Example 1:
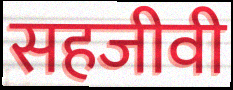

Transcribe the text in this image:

सहजीवी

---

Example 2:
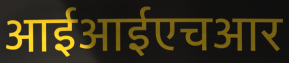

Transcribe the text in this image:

आईआईएचआर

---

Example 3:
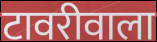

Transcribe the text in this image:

टावरीवाला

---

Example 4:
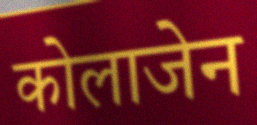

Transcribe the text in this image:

कोलाजेन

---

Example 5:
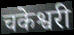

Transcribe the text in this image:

चकेश्वरी